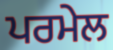
ਪਰਮੇਲ